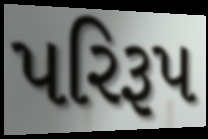
પરિરૂપ